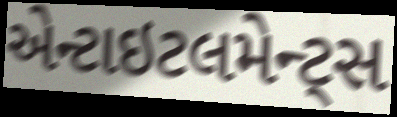
એન્ટાઇટલમેન્ટ્સ